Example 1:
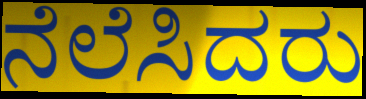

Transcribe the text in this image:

ನೆಲೆಸಿದರು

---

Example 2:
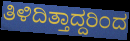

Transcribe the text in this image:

ತಿಳಿದಿತ್ತಾದ್ದರಿಂದ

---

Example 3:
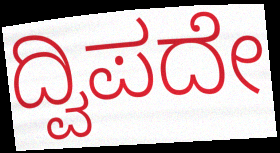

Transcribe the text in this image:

ದ್ವಿಪದೇ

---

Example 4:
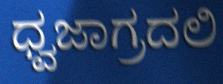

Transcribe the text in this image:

ಧ್ವಜಾಗ್ರದಲಿ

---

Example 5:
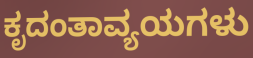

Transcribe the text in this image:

ಕೃದಂತಾವ್ಯಯಗಳು